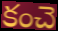
కంచె